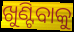
ଖୁଣ୍ଟିବାକୁ